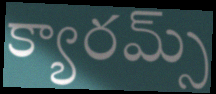
క్యారమ్స్